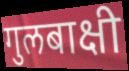
गुलबाक्षी